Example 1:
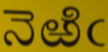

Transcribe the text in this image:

నెఱిఁ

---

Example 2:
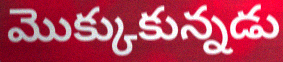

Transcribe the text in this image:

మొక్కుకున్నడు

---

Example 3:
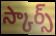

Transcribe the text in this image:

స్కార్స్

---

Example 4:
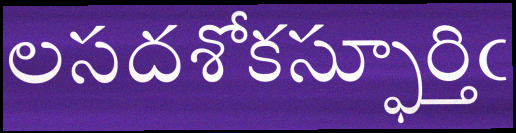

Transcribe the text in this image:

లసదశోకస్ఫూర్తిఁ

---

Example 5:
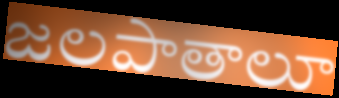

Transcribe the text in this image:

జలపాతాలూ